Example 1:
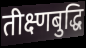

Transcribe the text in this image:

तीक्ष्णबुद्धि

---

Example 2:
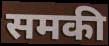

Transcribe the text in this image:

समकी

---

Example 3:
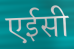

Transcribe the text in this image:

एईसी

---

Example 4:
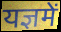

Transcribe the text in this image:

यज्ञमें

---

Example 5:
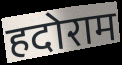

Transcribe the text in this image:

हदोराम